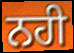
ਨਹੀ